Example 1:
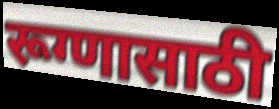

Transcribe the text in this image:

रूग्णासाठी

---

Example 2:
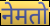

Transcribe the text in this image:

नेमतो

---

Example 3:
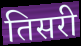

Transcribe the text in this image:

तिसरी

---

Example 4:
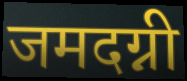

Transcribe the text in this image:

जमदग्नी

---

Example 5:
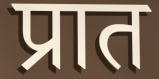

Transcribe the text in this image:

प्रात